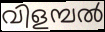
വിളമ്പൽ